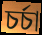
চৰ্চা